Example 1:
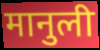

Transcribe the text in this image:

मानुली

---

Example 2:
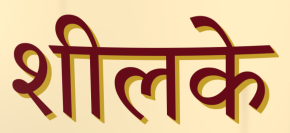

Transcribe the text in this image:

शीलके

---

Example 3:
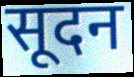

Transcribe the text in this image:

सूदन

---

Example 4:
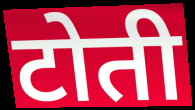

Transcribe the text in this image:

टोती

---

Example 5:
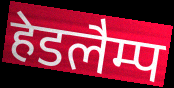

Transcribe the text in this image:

हेडलैम्प